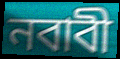
নবাবী